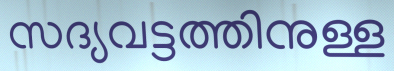
സദ്യവട്ടത്തിനുള്ള